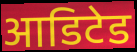
आडिटेड